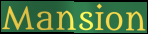
Mansion